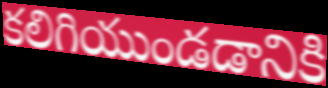
కలిగియుండడానికి